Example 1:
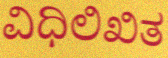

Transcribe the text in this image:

ವಿಧಿಲಿಖಿತ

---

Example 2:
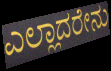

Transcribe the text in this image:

ಎಲ್ಲಾದರೇನು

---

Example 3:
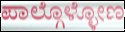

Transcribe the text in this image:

ಪಾಲ್ಗೊಳ್ಳೋಣ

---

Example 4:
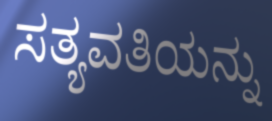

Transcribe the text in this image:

ಸತ್ಯವತಿಯನ್ನು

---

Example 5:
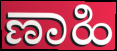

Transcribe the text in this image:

ಣಾಹಿ